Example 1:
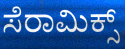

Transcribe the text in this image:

ಸೆರಾಮಿಕ್ಸ್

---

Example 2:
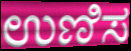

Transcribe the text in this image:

ಉಣಿಸ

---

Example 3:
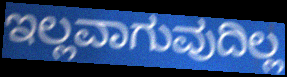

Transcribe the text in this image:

ಇಲ್ಲವಾಗುವುದಿಲ್ಲ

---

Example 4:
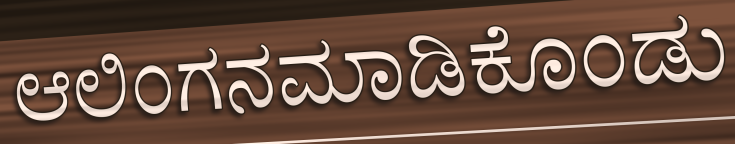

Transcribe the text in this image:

ಆಲಿಂಗನಮಾಡಿಕೊಂಡು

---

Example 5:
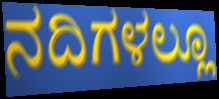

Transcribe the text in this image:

ನದಿಗಳಲ್ಲೂ